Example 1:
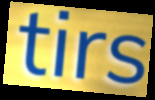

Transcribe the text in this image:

tirs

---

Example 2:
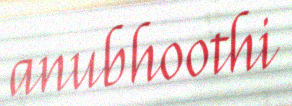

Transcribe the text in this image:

anubhoothi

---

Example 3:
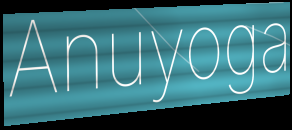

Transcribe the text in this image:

Anuyoga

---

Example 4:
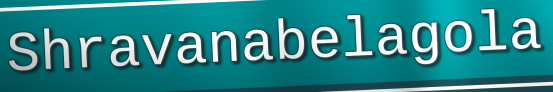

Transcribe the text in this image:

Shravanabelagola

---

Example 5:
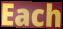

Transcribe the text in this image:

Each